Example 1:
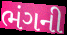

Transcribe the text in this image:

ભંગની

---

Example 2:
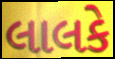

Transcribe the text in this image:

લાલકે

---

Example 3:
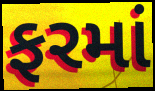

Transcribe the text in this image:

ફરમાં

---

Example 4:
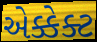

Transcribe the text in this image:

એક્કેક્ટ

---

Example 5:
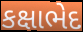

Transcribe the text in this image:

કક્ષાભેદ